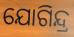
ଯୋଗିନ୍ଦ୍ର